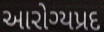
આરોગ્યપ્રદ